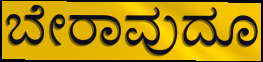
ಬೇರಾವುದೂ